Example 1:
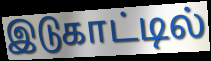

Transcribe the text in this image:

இடுகாட்டில்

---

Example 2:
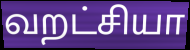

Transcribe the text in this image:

வறட்சியா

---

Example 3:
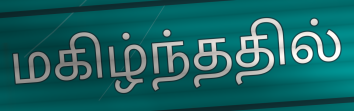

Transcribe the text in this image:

மகிழ்ந்ததில்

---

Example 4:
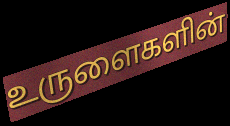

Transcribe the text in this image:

உருளைகளின்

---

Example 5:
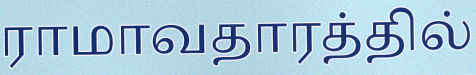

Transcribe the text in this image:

ராமாவதாரத்தில்